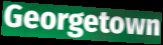
Georgetown